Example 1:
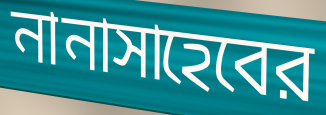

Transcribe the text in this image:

নানাসাহেবের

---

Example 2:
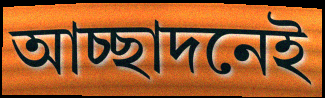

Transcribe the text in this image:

আচ্ছাদনেই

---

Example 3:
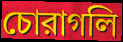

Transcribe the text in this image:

চোরাগলি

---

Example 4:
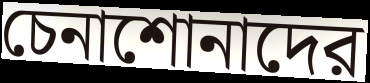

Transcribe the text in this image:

চেনাশোনাদের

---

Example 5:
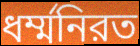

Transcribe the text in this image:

ধর্ম্মনিরত